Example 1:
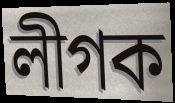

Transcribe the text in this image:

লীগক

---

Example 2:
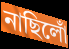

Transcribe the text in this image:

নাছিলোঁ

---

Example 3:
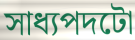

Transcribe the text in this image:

সাধ্যপদটো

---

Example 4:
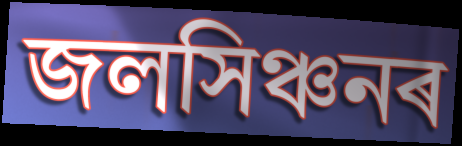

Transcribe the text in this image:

জলসিঞ্চনৰ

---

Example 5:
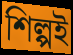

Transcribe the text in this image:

শিল্পই